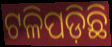
ଟଳିପଡ଼ିଛି